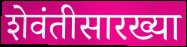
शेवंतीसारख्या